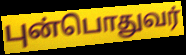
புன்பொதுவர்